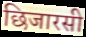
छिजारसी